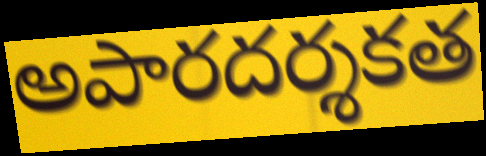
అపారదర్శకత